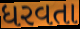
ધરવતા